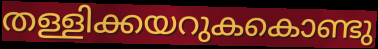
തള്ളിക്കയറുകകൊണ്ടു